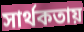
সার্থকতায়